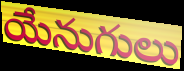
యేనుగులు